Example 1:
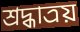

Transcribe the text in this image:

শ্রদ্ধাত্রয়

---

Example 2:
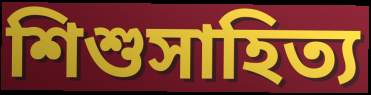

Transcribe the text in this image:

শিশুসাহিত্য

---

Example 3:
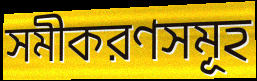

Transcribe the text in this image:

সমীকরণসমূহ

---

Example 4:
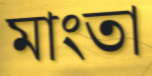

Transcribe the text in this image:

মাংতা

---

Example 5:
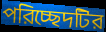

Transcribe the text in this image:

পরিচ্ছেদটির